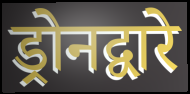
ड्रोनद्वारे